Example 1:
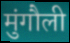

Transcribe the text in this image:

मुंगौली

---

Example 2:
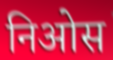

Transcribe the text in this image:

निओस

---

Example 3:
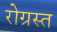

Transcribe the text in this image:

रोग्रस्त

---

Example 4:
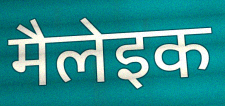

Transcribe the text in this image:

मैलेइक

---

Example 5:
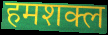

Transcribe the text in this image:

हमशक्ल